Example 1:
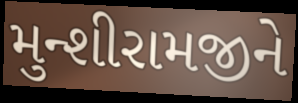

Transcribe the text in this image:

મુન્શીરામજીને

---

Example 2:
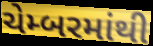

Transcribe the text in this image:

ચેમ્બરમાંથી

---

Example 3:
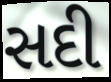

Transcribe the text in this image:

સદી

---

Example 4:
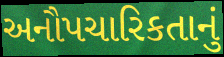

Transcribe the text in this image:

અનૌપચારિકતાનું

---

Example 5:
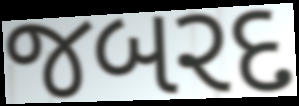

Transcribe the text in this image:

જબરદ